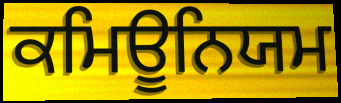
ਕਮਿਊਨਿਯਮ